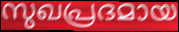
സുഖപ്രദമായ